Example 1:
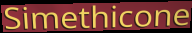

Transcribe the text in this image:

Simethicone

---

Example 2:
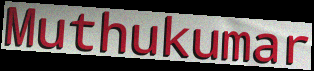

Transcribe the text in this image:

Muthukumar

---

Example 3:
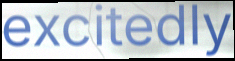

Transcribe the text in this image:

excitedly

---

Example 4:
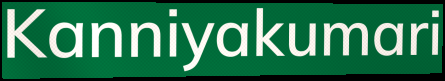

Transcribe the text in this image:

Kanniyakumari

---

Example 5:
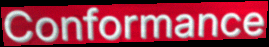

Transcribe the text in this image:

Conformance